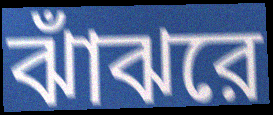
ঝাঁঝরে